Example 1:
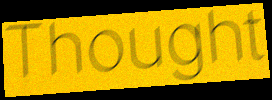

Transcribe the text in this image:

Thought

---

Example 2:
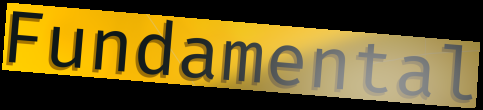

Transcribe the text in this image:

Fundamental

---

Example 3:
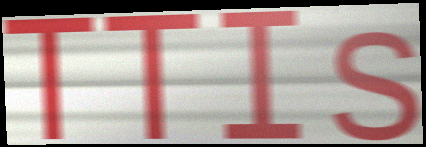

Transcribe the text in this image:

TTIs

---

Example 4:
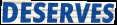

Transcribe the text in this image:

DESERVES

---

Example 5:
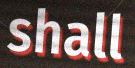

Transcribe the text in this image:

shall